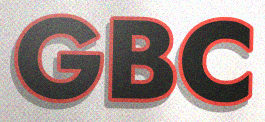
GBC